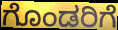
ಗೊಂಡರಿಗೆ